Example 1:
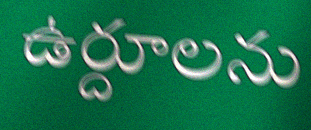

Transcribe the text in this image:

ఉర్దూలను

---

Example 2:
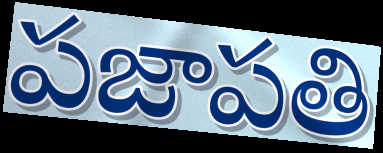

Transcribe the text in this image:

పజాపతి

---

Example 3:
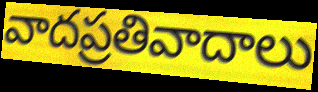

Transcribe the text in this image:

వాదప్రతివాదాలు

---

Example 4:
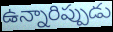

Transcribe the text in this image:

ఉన్నారిప్పుడు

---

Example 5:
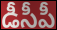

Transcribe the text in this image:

డీసీపీ